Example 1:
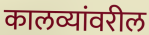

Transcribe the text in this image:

कालव्यांवरील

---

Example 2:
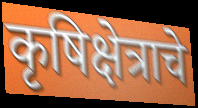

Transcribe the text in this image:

कृषिक्षेत्राचे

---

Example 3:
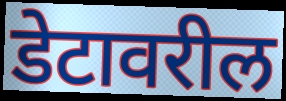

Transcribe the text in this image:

डेटावरील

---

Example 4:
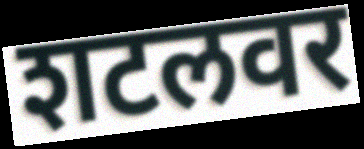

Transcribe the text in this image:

शटलवर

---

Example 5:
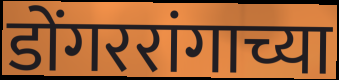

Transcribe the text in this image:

डोंगररांगाच्या